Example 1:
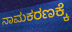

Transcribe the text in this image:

ನಾಮಕರಣಕ್ಕೆ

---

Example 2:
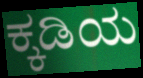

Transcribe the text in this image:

ಕ್ಕಡಿಯ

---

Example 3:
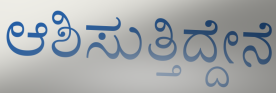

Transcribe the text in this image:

ಆಶಿಸುತ್ತಿದ್ದೇನೆ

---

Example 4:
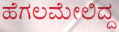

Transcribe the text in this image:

ಹೆಗಲಮೇಲಿದ್ದ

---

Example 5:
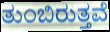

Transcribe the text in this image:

ತುಂಬಿರುತ್ತವೆ